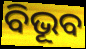
ବିଭୂବ